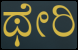
ಥೇರಿ